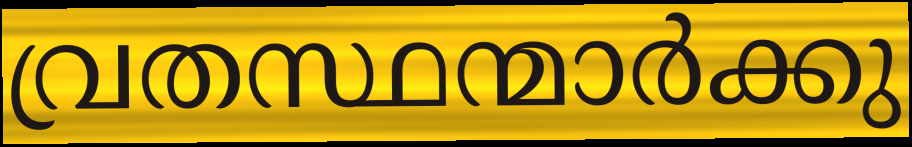
വ്രതസ്ഥന്മാർക്കു